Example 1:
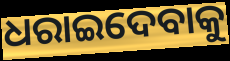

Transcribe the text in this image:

ଧରାଇଦେବାକୁ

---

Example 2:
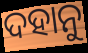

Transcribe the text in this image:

ଦହାନୁ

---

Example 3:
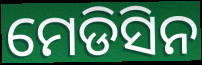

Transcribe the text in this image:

ମେଡିସିନ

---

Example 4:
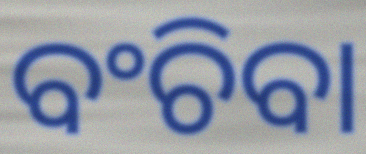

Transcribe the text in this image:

ବଂଚିବା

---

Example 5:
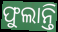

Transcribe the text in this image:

ଫୁଲାନ୍ତି